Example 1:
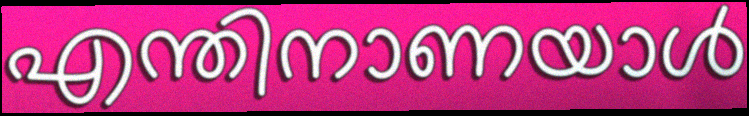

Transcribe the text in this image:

എന്തിനാണയാൾ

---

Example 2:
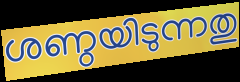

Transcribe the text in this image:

ശണ്ഠയിടുന്നതു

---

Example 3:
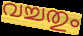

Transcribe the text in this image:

വച്ചതും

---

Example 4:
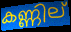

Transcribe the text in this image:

കണ്ണില്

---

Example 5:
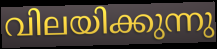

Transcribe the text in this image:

വിലയിക്കുന്നു